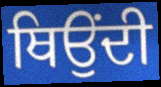
ਥਿਉਂਦੀ